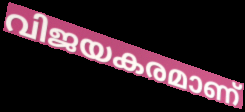
വിജയകരമാണ്